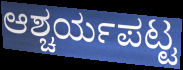
ಆಶ್ಚರ್ಯಪಟ್ಟ